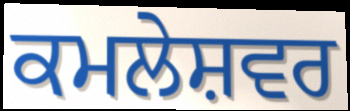
ਕਮਲੇਸ਼ਵਰ